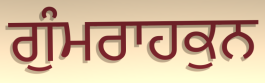
ਗੁੰਮਰਾਹਕੁਨ